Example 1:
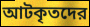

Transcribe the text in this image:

আটকৃতদের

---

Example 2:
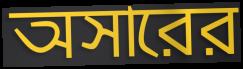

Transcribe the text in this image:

অসারের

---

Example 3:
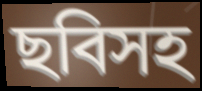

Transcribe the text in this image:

ছবিসহ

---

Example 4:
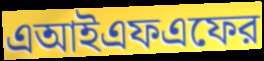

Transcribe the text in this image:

এআইএফএফের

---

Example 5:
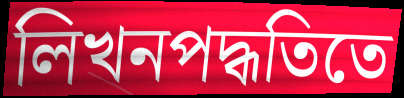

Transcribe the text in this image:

লিখনপদ্ধতিতে